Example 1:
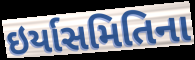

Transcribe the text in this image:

ઇર્યાસમિતિના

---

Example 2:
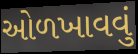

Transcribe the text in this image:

ઓળખાવવું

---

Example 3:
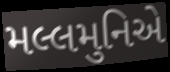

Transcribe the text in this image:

મલ્લમુનિએ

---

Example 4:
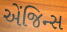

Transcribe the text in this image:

એંજિન્સ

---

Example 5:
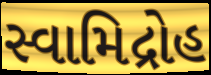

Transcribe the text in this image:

સ્વામિદ્રોહ